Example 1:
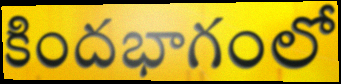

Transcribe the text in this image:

కిందభాగంలో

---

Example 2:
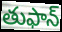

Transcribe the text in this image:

తుఫాన్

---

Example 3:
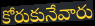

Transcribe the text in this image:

కోరుకునేవారు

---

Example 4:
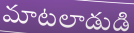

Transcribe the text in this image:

మాటలాడుడి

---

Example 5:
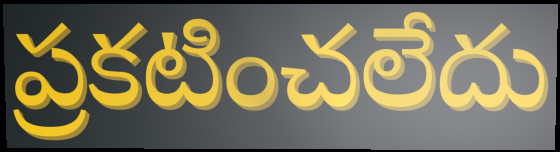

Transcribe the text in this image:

ప్రకటించలేదు